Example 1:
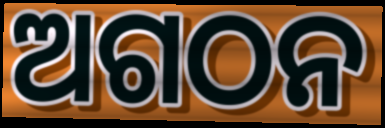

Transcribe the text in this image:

ଅଗଠନ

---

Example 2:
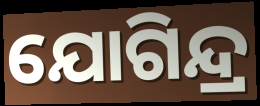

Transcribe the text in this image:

ଯୋଗିନ୍ଦ୍ର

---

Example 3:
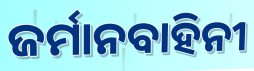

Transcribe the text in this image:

ଜର୍ମାନବାହିନୀ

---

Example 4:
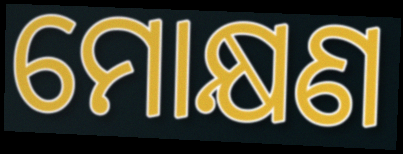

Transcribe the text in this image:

ମୋକ୍ଷଣ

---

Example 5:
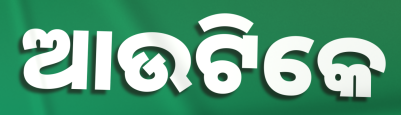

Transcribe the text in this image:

ଆଉଟିକେ